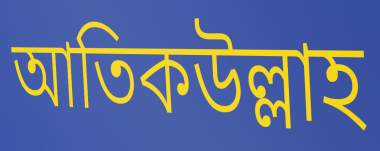
আতিকউল্লাহ